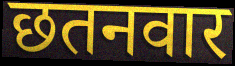
छतनवार